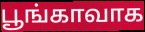
பூங்காவாக